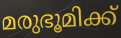
മരുഭൂമിക്ക്